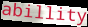
abillity